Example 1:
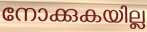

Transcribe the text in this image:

നോക്കുകയില്ല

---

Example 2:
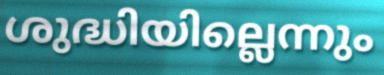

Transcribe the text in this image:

ശുദ്ധിയില്ലെന്നും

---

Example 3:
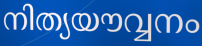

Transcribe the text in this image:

നിത്യയൗവ്വനം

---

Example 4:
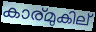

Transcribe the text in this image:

കാര്മുകില്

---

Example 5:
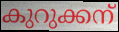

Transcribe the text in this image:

കുറുക്കന്